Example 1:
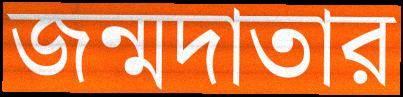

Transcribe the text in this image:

জন্মদাতার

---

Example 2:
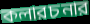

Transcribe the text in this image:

কলারচনার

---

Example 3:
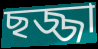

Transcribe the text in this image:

ছজ্জা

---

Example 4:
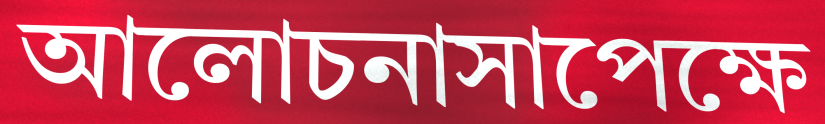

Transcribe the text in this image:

আলোচনাসাপেক্ষে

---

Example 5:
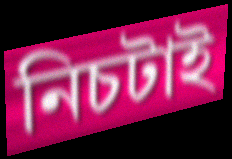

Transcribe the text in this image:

নিচটাই